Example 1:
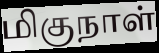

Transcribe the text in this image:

மிகுநாள்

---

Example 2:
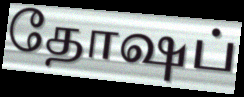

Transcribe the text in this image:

தோஷப்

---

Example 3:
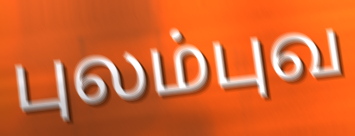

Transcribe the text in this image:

புலம்புவ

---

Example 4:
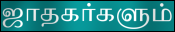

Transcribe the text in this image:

ஜாதகர்களும்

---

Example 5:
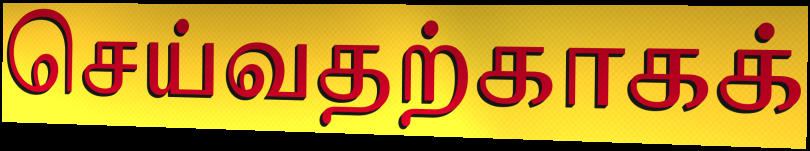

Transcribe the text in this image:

செய்வதற்காகக்